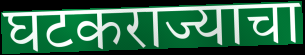
घटकराज्याचा